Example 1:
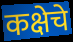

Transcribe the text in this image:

कक्षेचे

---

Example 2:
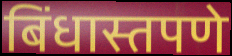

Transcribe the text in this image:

बिंधास्तपणे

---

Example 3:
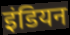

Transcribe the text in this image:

इंडियन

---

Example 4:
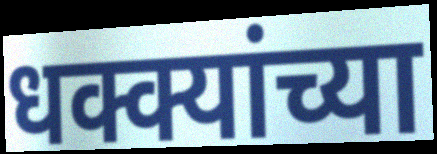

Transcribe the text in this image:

धक्क्यांच्या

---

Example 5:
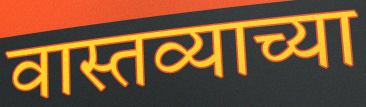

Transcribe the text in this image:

वास्तव्याच्या